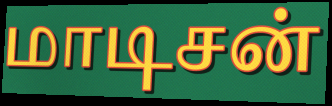
மாடிசன்